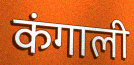
कंगाली